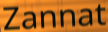
Zannat